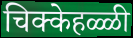
चिक्केहळ्ळी